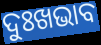
ଦୁଃଖଭାବ